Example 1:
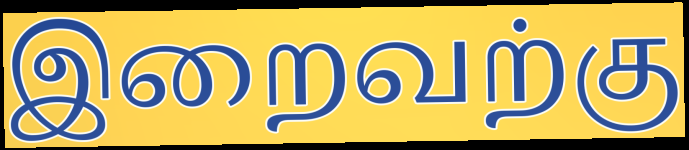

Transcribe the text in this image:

இறைவற்கு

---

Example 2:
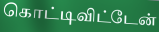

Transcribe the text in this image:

கொட்டிவிட்டேன்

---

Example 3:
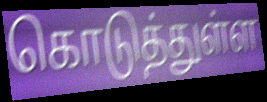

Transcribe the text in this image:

கொடுத்துள்ள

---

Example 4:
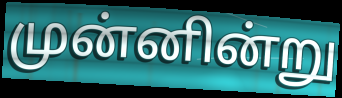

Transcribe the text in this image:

முன்னின்று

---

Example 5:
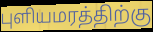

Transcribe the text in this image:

புளியமரத்திற்கு